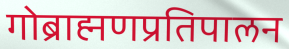
गोब्राह्मणप्रतिपालन